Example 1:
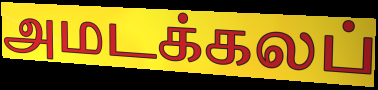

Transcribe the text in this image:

அமடக்கலப்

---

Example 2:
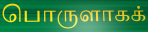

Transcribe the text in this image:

பொருளாகக்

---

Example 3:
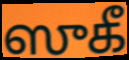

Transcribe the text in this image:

ஸுகீ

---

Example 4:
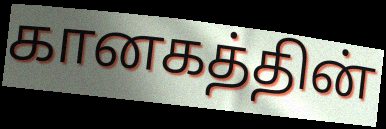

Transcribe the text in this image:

கானகத்தின்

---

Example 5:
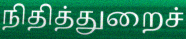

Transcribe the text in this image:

நிதித்துறைச்